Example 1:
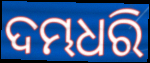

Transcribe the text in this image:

ଦମ୍ଭଧରି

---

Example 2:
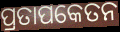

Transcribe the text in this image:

ପ୍ରତାପକେତନ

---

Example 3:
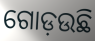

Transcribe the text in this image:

ଗୋଡ଼ଉଛି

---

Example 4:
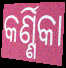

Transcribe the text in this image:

କର୍ଣ୍ଣିକା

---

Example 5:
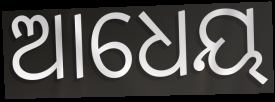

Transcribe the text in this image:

ଆଧେୟ